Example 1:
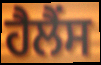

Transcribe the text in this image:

ਹੈਲੈਂਸ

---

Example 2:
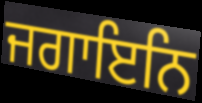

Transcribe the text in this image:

ਜਗਾਇਨਿ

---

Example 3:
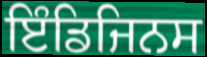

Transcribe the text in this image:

ਇੰਡਿਜਿਨਸ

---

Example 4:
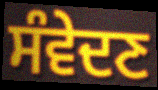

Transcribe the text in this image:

ਸੰਵੇਦਣ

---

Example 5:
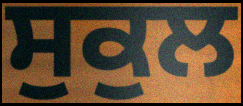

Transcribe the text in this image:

ਸੁਕੁਲ